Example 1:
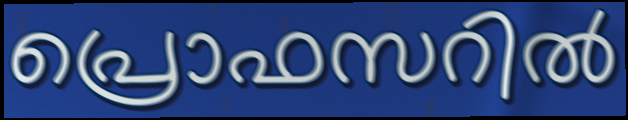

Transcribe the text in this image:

പ്രൊഫസറിൽ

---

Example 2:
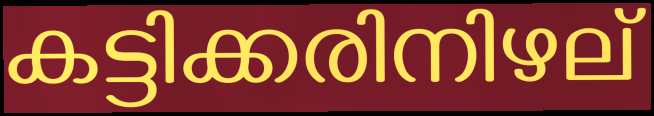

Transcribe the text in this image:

കട്ടിക്കരിനിഴല്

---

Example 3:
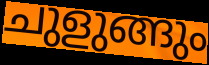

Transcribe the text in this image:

ചുളുങ്ങും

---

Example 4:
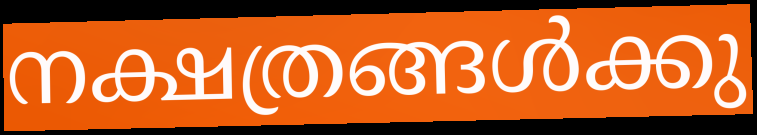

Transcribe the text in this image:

നക്ഷത്രങ്ങൾക്കു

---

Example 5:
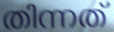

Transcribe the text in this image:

തിന്നത്